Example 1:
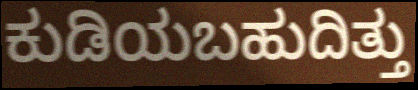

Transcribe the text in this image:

ಕುಡಿಯಬಹುದಿತ್ತು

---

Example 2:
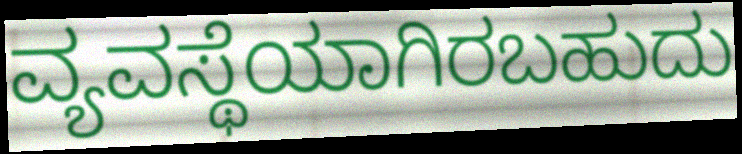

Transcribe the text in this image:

ವ್ಯವಸ್ಥೆಯಾಗಿರಬಹುದು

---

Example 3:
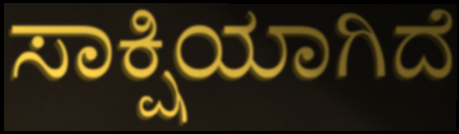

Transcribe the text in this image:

ಸಾಕ್ಷಿಯಾಗಿದೆ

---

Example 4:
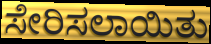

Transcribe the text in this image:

ಸೇರಿಸಲಾಯಿತು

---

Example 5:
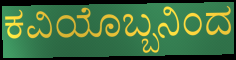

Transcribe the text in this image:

ಕವಿಯೊಬ್ಬನಿಂದ